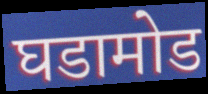
घडामोड